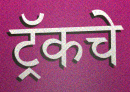
ट्रॅकचे